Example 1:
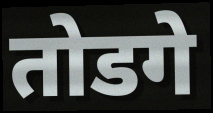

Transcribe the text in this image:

तोडगे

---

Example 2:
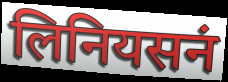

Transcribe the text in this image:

लिनियसनं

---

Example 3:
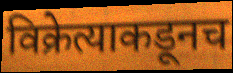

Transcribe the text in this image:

विक्रेत्याकडूनच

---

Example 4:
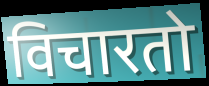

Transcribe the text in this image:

विचारतो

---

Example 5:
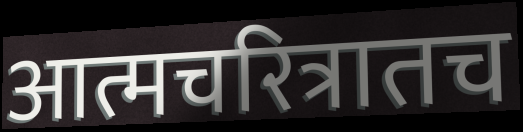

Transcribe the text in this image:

आत्मचरित्रातच